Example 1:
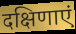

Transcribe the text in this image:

दक्षिणाएं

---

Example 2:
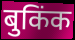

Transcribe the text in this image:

बुकिंक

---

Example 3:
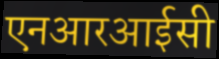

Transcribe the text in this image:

एनआरआईसी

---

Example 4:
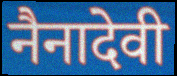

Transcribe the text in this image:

नैनादेवी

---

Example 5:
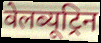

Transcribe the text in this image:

वेलब्यूट्रिन